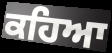
ਕਹਿਆ